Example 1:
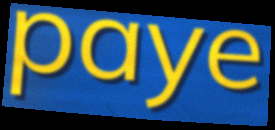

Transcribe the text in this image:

paye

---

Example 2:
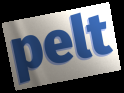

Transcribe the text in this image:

pelt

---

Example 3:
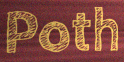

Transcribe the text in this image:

Poth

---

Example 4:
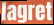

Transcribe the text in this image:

lagret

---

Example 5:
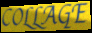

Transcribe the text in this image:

COLLAGE